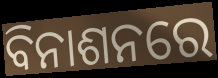
ବିନାଶନରେ